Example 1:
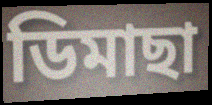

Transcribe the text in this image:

ডিমাছা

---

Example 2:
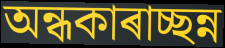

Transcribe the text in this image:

অন্ধকাৰাচ্ছন্ন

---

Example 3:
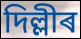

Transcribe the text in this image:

দিল্লীৰ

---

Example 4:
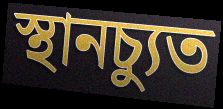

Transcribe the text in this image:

স্থানচ্যুত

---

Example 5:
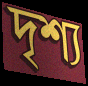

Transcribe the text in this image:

দৃশ্য